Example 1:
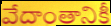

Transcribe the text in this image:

వేదాంతానికీ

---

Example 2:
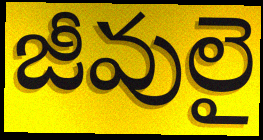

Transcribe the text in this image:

జీవులై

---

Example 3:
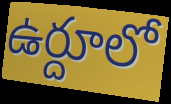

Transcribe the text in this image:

ఉర్దూలో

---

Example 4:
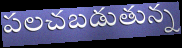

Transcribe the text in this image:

పలచబడుతున్న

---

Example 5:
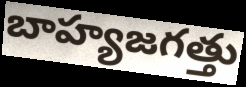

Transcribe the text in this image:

బాహ్యజగత్తు